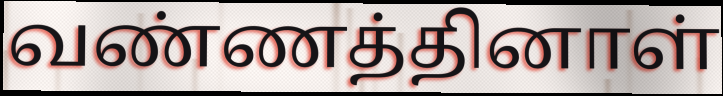
வண்ணத்தினாள்